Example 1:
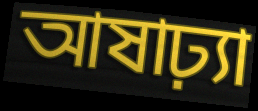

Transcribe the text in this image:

আষাঢ়্যা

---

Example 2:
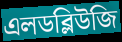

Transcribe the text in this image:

এলডব্লিউজি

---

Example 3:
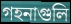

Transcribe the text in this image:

গহনাগুলি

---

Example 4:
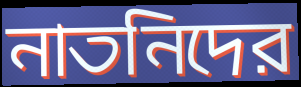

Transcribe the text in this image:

নাতনিদের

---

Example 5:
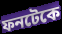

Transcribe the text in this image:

ফনটেকে